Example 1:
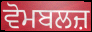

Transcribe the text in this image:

ਵੋਮਬਲਜ਼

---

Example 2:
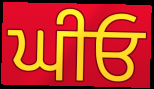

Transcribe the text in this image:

ਘੀਓ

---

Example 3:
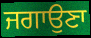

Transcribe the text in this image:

ਜਗਾਉਣਾ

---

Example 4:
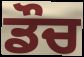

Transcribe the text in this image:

ਡੌਚ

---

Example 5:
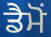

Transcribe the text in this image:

ਡੈਮੋਂ